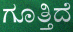
ಗೂತ್ತಿದೆ